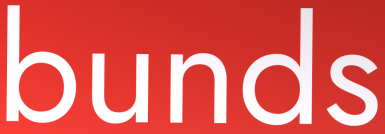
bunds